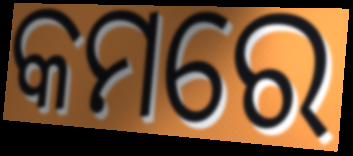
କମରେ